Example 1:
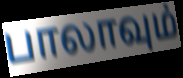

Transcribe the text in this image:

பாலாவும்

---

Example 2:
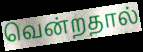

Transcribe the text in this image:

வென்றதால்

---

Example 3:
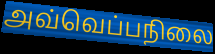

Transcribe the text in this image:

அவ்வெப்பநிலை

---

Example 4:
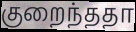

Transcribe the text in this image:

குறைந்ததா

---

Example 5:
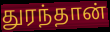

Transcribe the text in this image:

துரந்தான்